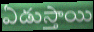
ఏడుస్తాయి